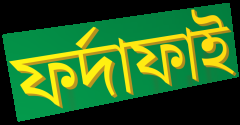
ফর্দাফাই